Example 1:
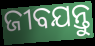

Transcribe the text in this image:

ଜୀବଯନ୍ତୁ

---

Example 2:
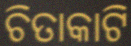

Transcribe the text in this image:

ଚିତାକାଟି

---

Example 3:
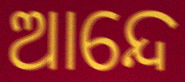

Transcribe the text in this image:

ଆନ୍ଦେ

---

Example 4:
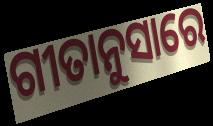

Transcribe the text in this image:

ଗୀତାନୁସାରେ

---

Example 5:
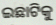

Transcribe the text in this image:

ଇଛାଟିକୁ